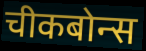
चीकबोन्स